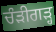
ਚੰੜੀਗੜ੍ਹ